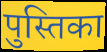
पुस्तिका